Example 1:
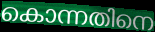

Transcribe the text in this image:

കൊന്നതിനെ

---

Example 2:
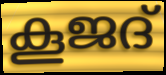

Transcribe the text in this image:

കൂജദ്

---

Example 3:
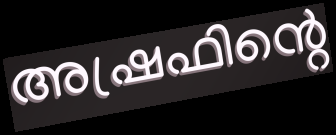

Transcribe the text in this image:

അഷ്രഫിന്റെ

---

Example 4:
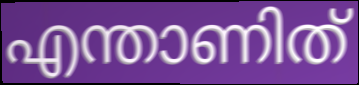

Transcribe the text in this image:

എന്താണിത്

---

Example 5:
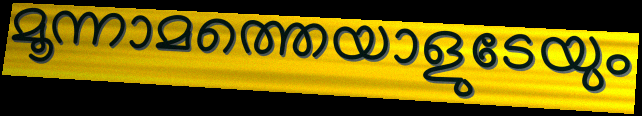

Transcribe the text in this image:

മൂന്നാമത്തെയാളുടേയും